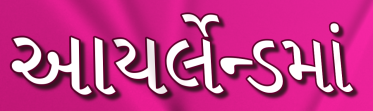
આયર્લેન્ડમાં